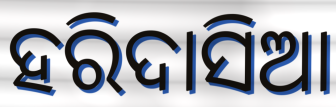
ହରିଦାସିଆ